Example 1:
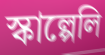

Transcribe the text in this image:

স্কাল্পেলি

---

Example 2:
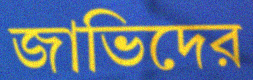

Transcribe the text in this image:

জাভিদের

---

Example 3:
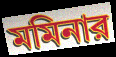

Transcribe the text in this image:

মমিনার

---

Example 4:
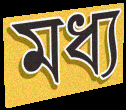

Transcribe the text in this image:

মধ্য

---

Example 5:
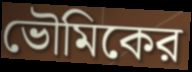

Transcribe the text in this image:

ভৌমিকের